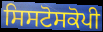
ਸਿਸਟੋਸਕੋਪੀ